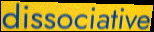
dissociative